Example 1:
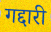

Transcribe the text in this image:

गद्दारी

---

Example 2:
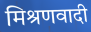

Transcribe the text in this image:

मिश्रणवादी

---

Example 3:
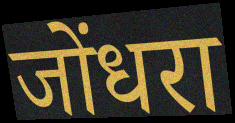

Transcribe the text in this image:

जोंधरा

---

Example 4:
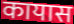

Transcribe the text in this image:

कायास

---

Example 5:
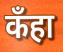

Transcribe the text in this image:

कँहा